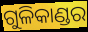
ଗୁଳିକାଣ୍ଡର